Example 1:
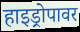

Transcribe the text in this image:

हाइड्रोपावर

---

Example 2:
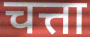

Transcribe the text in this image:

चत्ता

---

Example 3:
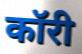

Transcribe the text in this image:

कॉरी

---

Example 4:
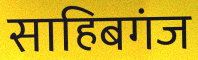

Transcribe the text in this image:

साहिबगंज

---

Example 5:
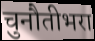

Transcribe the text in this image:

चुनौतीभरा